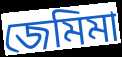
জেমিমা